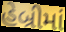
હેબ્રીમાં